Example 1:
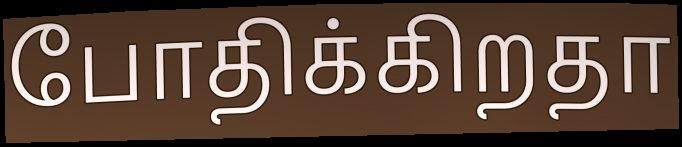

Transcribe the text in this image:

போதிக்கிறதா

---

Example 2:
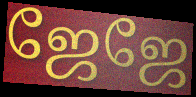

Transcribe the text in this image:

ஜேஜே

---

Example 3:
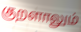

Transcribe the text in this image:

குறளாலும்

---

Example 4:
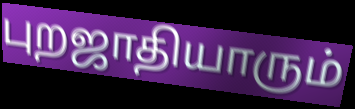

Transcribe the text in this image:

புறஜாதியாரும்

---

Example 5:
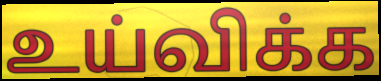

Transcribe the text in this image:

உய்விக்க